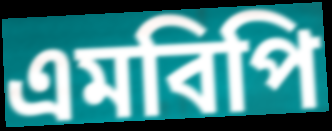
এমবিপি